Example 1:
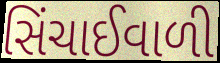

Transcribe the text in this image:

સિંચાઈવાળી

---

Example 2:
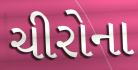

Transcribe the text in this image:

ચીરોના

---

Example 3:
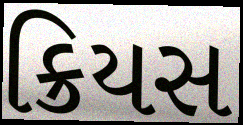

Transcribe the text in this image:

ક્રિયસ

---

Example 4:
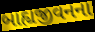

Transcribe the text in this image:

બાહ્યજીવનના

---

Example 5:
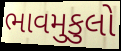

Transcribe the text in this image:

ભાવમુકુલો